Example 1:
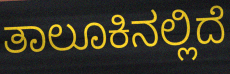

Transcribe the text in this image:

ತಾಲೂಕಿನಲ್ಲಿದೆ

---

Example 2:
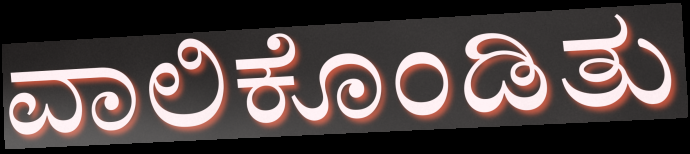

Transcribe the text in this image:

ವಾಲಿಕೊಂಡಿತು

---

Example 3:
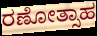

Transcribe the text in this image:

ರಣೋತ್ಸಾಹ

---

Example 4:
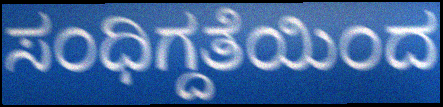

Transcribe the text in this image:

ಸಂಧಿಗ್ದತೆಯಿಂದ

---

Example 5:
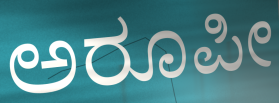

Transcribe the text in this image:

ಅರೂಪೀ